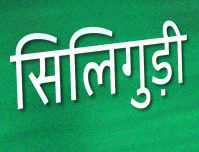
सिलिगुड़ी